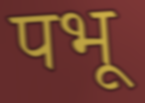
पभू